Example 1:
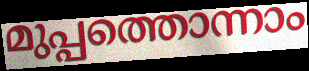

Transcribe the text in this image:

മുപ്പത്തൊന്നാം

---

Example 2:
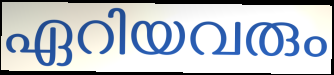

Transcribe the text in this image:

ഏറിയവരും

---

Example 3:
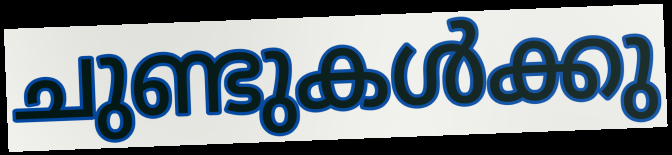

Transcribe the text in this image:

ചുണ്ടുകൾക്കു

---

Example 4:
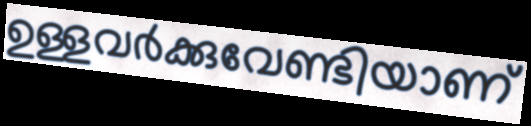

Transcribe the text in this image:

ഉള്ളവർക്കുവേണ്ടിയാണ്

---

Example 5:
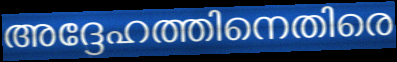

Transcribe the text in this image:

അദ്ദേഹത്തിനെതിരെ